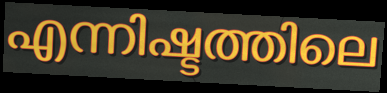
എന്നിഷ്ടത്തിലെ